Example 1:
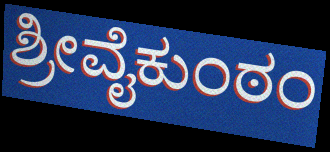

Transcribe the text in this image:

ಶ್ರೀವೈಕುಂಠಂ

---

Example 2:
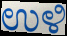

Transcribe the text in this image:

ಉಳಿ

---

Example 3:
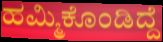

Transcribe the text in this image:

ಹಮ್ಮಿಕೊಂಡಿದ್ದೆ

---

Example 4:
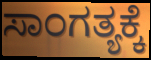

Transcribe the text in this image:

ಸಾಂಗತ್ಯಕ್ಕೆ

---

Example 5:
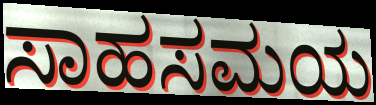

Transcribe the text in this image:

ಸಾಹಸಮಯ